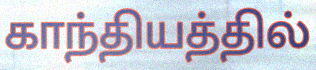
காந்தியத்தில்